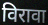
विरावा